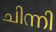
ചിന്നി